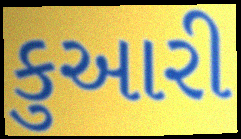
કુઆરી